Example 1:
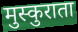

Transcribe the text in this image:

मुस्कुराता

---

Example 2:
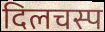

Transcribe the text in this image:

दिलचस्प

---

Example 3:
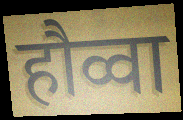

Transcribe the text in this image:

हौव्वा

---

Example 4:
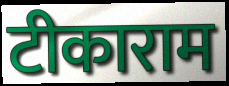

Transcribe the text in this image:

टीकाराम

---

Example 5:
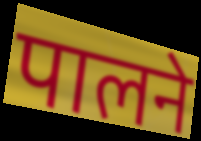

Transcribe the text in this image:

पालने